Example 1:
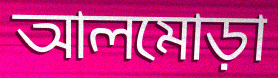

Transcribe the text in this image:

আলমোড়া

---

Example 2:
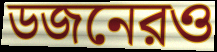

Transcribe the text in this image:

ডজনেরও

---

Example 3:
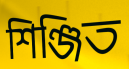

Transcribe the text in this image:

শিঞ্জিত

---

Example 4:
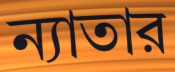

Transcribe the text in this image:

ন্যাতার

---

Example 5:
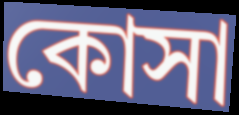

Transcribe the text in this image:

কোসা